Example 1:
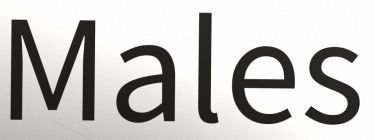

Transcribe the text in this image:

Males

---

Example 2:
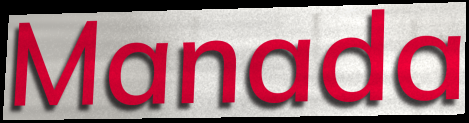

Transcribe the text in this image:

Manada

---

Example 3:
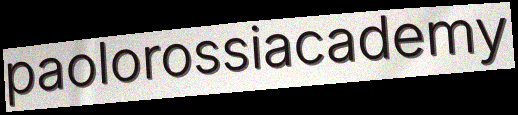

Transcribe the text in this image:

paolorossiacademy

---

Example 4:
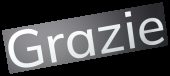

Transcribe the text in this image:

Grazie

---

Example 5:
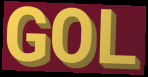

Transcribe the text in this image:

GOL